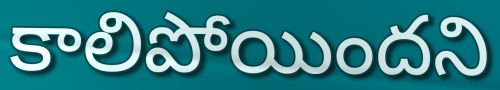
కాలిపోయిందని